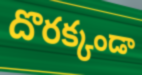
దొరక్కండా